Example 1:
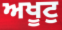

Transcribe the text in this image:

ਅਖੂਟੁ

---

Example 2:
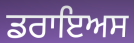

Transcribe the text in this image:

ਡਰਾਇਅਸ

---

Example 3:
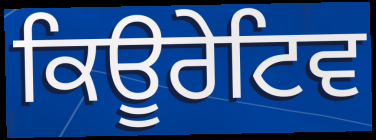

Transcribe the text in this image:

ਕਿਊਰੇਟਿਵ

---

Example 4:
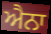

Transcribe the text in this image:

ਐਨਾ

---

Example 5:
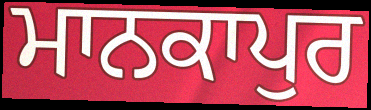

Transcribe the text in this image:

ਮਾਨਕਾਪੁਰ